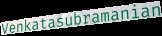
Venkatasubramanian